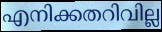
എനിക്കതറിവില്ല